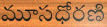
మూసధోరణి